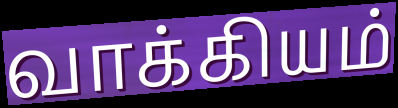
வாக்கியம்